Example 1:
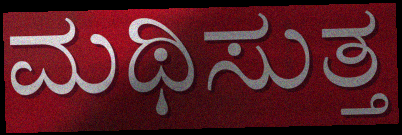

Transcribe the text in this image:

ಮಥಿಸುತ್ತ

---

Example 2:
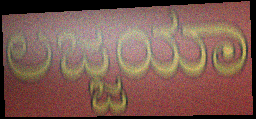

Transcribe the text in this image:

ಲಜ್ಜಯಾ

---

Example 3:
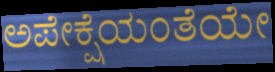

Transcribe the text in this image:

ಅಪೇಕ್ಷೆಯಂತೆಯೇ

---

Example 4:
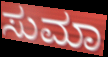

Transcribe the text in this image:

ಸುಮಾ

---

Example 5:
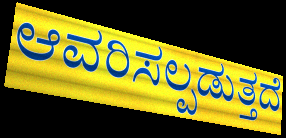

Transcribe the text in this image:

ಆವರಿಸಲ್ಪಡುತ್ತದೆ